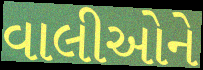
વાલીઓને